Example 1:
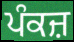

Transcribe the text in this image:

ਪੰਕਜ਼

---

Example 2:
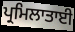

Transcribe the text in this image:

ਪ੍ਰਮਿਲਾਤਾਈ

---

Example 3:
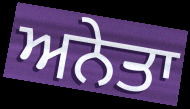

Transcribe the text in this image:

ਅਨੇਤਾ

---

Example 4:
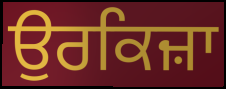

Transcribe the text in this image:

ਉਰਕਿਜ਼ਾ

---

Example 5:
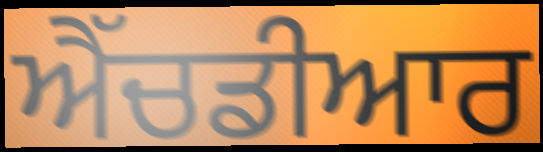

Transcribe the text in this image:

ਐੱਚਡੀਆਰ